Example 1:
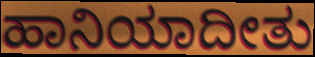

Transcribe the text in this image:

ಹಾನಿಯಾದೀತು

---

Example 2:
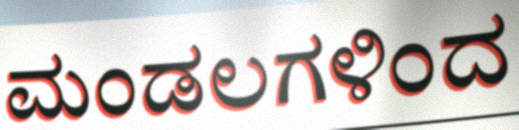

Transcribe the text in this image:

ಮಂಡಲಗಳಿಂದ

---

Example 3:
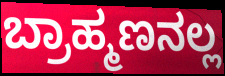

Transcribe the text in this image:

ಬ್ರಾಹ್ಮಣನಲ್ಲ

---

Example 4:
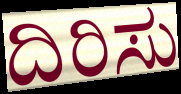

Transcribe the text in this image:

ದಿರಿಸು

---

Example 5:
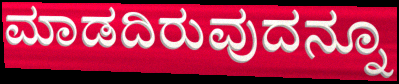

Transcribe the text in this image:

ಮಾಡದಿರುವುದನ್ನೂ